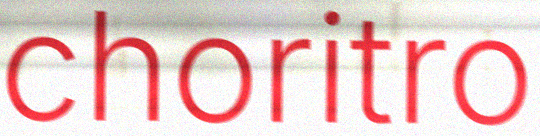
choritro